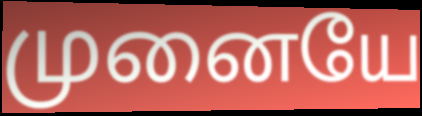
முனையே